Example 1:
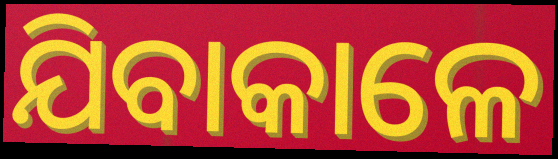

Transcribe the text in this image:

ଯିବାକାଳେ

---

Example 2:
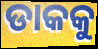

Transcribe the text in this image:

ଡାକକୁ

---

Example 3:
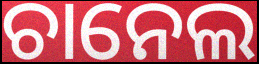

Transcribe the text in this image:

ଚାନେଲ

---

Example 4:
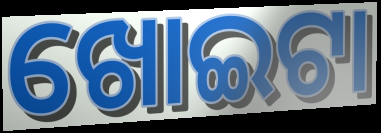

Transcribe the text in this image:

ଖୋଇଟା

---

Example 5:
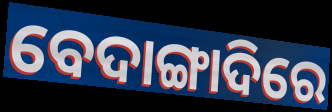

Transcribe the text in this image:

ବେଦାଙ୍ଗାଦିରେ